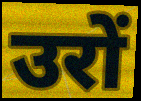
उरों